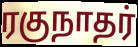
ரகுநாதர்